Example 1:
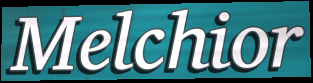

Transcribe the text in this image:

Melchior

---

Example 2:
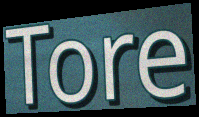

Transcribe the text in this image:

Tore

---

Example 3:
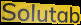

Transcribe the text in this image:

Solutab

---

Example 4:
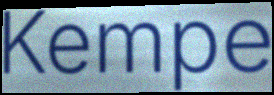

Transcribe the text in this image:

Kempe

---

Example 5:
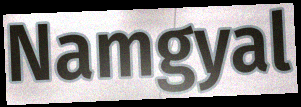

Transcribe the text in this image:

Namgyal